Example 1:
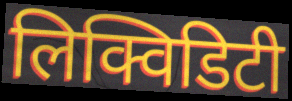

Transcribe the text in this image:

लिक्विडिटी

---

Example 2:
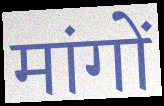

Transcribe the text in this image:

मांगों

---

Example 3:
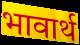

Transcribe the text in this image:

भावार्थ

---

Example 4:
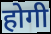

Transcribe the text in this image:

होगी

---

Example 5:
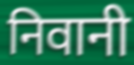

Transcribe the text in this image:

निवानी